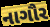
નાગૌર